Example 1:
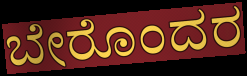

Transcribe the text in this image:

ಬೇರೊಂದರ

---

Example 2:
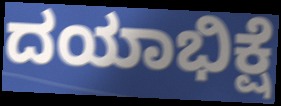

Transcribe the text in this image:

ದಯಾಭಿಕ್ಷೆ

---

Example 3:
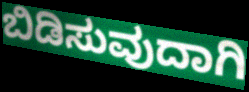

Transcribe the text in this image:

ಬಿಡಿಸುವುದಾಗಿ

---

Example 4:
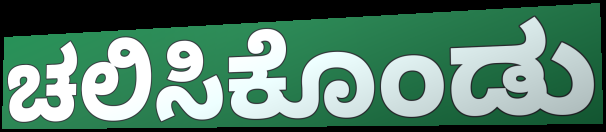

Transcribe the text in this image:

ಚಲಿಸಿಕೊಂಡು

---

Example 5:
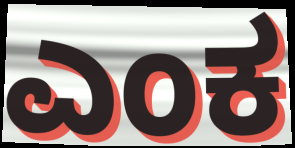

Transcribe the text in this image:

ಎಂಕ